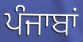
ਪੰਜਾਬਾਂ